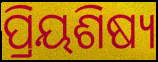
ପ୍ରିୟଶିଷ୍ୟ